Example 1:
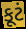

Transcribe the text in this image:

કૂટં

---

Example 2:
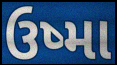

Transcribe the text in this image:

ઉષ્મા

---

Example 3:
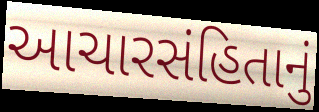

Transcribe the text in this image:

આચારસંહિતાનું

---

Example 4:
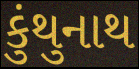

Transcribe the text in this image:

કુંથુનાથ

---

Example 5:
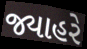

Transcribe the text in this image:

જ્યાહરે